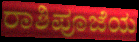
ರಾಶಿಪೂಜೆಯ